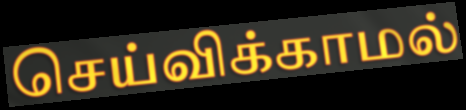
செய்விக்காமல்